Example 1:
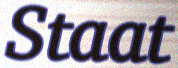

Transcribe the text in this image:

Staat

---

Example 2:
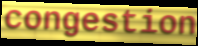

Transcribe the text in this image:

congestion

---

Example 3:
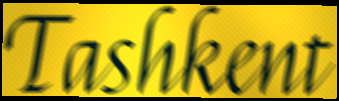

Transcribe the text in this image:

Tashkent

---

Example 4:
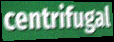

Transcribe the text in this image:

centrifugal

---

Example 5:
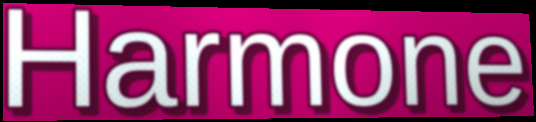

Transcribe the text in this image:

Harmone